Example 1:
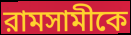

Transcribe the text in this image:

রামসামীকে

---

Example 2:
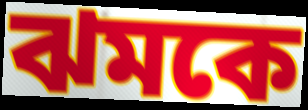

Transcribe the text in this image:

ঝমকে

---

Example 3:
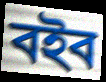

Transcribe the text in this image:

বইব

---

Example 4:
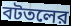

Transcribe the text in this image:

বটতলের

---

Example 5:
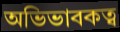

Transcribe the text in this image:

অভিভাবকত্ব